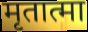
मृतात्मा